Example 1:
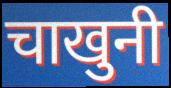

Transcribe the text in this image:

चाखुनी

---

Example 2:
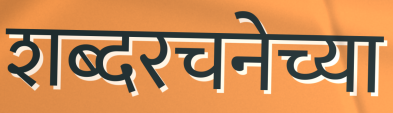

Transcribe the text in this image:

शब्दरचनेच्या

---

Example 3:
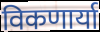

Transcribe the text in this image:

विकणार्या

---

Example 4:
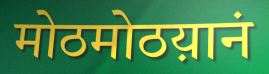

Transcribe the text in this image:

मोठमोठय़ानं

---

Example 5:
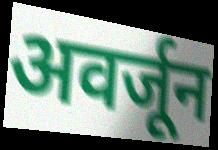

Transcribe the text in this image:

अवर्जून